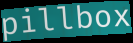
pillbox